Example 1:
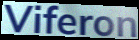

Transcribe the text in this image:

Viferon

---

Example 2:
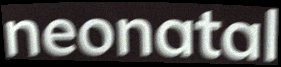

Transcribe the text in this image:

neonatal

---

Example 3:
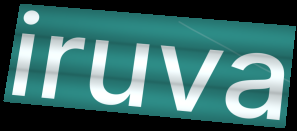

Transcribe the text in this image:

iruva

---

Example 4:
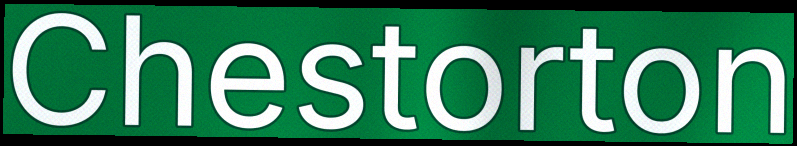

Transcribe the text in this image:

Chestorton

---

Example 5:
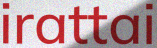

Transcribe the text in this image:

irattai